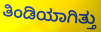
ತಿಂಡಿಯಾಗಿತ್ತು